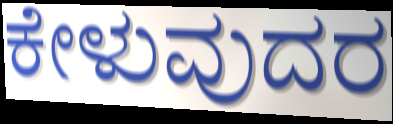
ಕೇಳುವುದರ